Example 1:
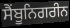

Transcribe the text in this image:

ਸੈਂਬੂਨਿਗਰੀਨ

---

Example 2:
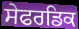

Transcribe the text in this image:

ਸੇਫਰਡਿਕ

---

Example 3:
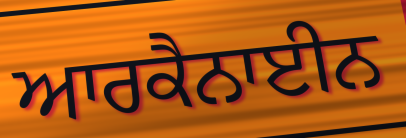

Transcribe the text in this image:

ਆਰਕੈਨਾਈਨ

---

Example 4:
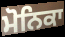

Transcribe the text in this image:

ਮੋਨਿਕਾ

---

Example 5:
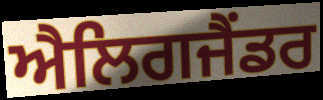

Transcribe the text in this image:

ਐਲਿਗਜੈਂਡਰ